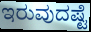
ಇರುವುದಷ್ಟೆ